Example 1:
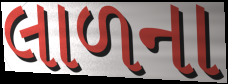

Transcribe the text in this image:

લાળના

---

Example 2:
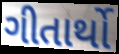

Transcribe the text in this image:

ગીતાર્થો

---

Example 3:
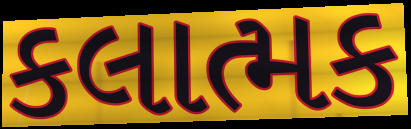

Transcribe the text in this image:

કલાત્મક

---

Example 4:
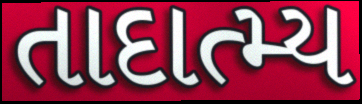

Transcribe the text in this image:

તાદાત્મ્ય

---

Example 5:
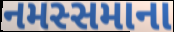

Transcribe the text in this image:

નમસ્સમાના